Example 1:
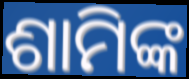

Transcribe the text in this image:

ଶାମିଙ୍କ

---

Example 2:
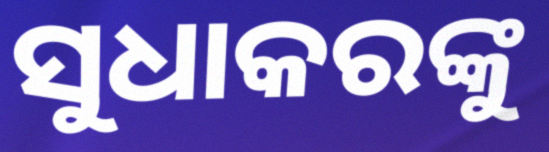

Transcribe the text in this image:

ସୁଧାକରଙ୍କୁ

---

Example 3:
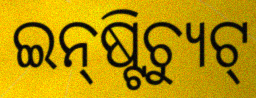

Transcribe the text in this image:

ଇନ୍‌ଷ୍ଟିଚ୍ୟୁଟ୍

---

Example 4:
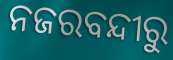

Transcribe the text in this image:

ନଜରବନ୍ଦୀରୁ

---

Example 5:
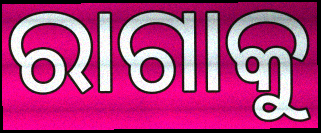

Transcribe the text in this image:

ରାଗାକୁ